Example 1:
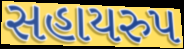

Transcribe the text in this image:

સહાયરુપ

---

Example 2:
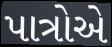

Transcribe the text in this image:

પાત્રોએ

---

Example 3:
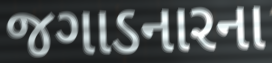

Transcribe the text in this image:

જગાડનારના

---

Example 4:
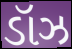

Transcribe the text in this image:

ડૉઝ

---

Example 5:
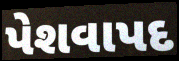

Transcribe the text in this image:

પેશવાપદ